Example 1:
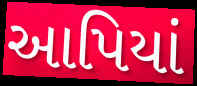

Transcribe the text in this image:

આપિયાં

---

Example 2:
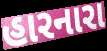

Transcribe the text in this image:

હારનારા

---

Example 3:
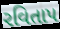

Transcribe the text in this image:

રવિતાપ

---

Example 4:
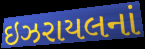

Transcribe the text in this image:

ઇઝરાયલનાં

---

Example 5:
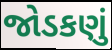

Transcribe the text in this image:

જોડકણું